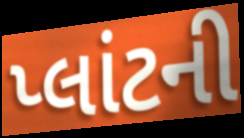
પ્લાંટની